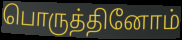
பொருத்தினோம்